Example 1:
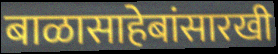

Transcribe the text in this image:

बाळासाहेबांसारखी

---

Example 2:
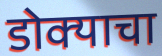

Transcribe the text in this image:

डोक्याचा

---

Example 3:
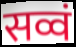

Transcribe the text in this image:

सव्वं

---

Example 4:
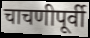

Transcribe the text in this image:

चाचणीपूर्वी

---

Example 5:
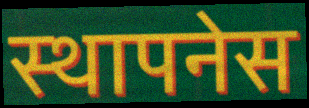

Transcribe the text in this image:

स्थापनेस